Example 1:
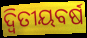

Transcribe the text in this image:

ଦ୍ୱିତୀୟବର୍ଷ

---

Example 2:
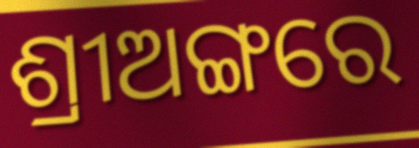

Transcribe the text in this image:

ଶ୍ରୀଅଙ୍ଗରେ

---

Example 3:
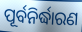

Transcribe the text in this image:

ପୂର୍ବନିର୍ଦ୍ଧାରଣ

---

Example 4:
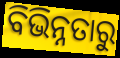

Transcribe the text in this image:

ବିଭିନ୍ନତାରୁ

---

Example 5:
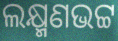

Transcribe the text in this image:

ଲକ୍ଷ୍ମଣଭଟ୍ଟ